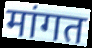
मांगत